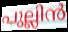
പുല്ലിൻ